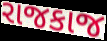
રાજકાજ